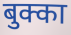
बुक्का